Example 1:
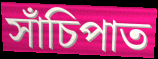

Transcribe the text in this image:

সাঁচিপাত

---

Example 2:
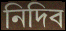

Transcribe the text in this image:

নিদিব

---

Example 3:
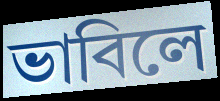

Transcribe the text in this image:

ভাবিলে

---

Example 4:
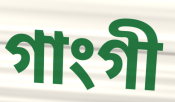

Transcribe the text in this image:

গাংগী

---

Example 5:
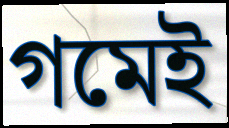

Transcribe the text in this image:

গমেই